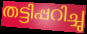
തട്ടിപ്പറിച്ചു